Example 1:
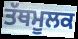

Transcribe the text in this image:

ਤੱਥਮੂਲਕ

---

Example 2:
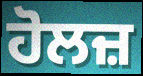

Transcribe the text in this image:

ਹੋਲਜ਼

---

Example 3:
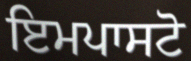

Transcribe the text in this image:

ਇਮਪਾਸਟੋ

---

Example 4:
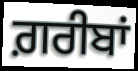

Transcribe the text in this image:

ਗ਼ਰੀਬਾਂ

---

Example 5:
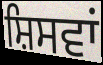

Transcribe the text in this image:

ਸ਼ਿਸਵਾਂ